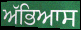
ਅੱਭਿਆਸ